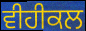
ਵੀਹੀਕਲ